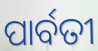
ପାର୍ବତୀ